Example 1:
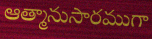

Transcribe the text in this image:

ఆత్మానుసారముగా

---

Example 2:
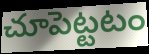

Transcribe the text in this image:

చూపెట్టటం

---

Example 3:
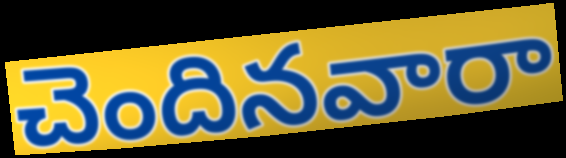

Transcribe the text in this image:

చెందినవారా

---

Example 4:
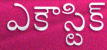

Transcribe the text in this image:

ఎకౌస్టిక్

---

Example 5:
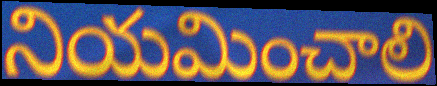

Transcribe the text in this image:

నియమించాలి